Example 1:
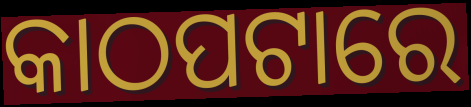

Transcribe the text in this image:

କାଠପଟାରେ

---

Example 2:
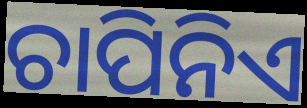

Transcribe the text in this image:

ଚାପିନିଏ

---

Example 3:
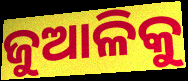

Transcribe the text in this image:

ଜୁଆଳିକୁ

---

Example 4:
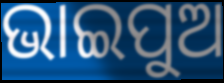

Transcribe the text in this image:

ଭାଇପୁଅ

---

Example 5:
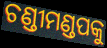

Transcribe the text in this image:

ଚଣ୍ଡୀମଣ୍ଡପକୁ